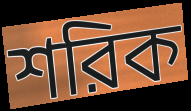
শরিক